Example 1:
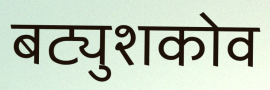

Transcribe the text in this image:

बट्युशकोव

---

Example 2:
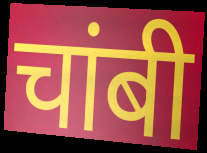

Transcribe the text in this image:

चांबी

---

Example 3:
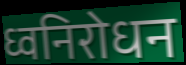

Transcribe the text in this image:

ध्वनिरोधन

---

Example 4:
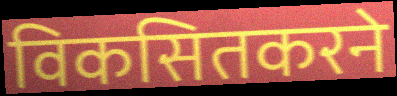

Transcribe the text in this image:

विकसितकरने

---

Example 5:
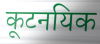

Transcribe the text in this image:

कूटनयिक